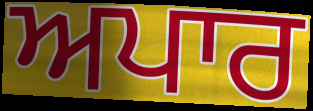
ਅਪਾਰ